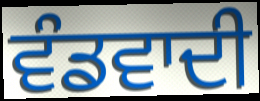
ਵੰਡਵਾਦੀ